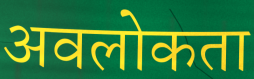
अवलोकता